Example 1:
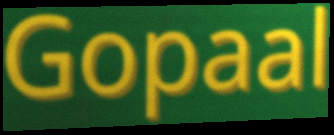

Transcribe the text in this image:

Gopaal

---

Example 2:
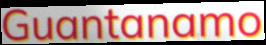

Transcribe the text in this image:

Guantanamo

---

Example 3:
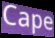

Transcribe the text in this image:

Cape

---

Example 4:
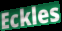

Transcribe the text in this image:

Eckles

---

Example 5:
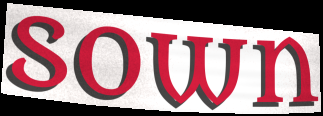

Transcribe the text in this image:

sown